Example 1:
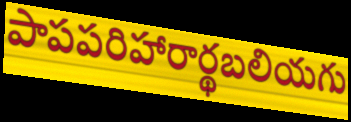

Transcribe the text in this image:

పాపపరిహారార్థబలియగు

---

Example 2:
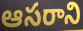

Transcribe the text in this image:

ఆసరాని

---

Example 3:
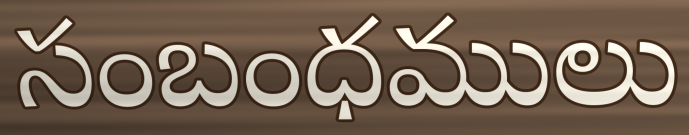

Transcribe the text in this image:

సంబంధములు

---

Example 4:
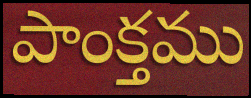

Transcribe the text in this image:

పాంక్తము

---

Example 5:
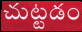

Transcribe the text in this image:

చుట్టడం